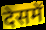
देसमें